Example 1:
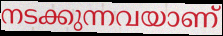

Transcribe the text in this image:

നടക്കുന്നവയാണ്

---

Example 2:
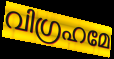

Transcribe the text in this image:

വിഗ്രഹമേ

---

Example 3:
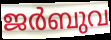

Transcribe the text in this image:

ജർബുവ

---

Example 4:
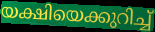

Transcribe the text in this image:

യക്ഷിയെക്കുറിച്ച്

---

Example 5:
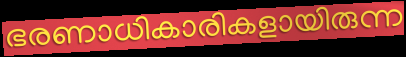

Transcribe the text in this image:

ഭരണാധികാരികളായിരുന്ന